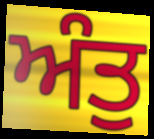
ਅੰਤੁ